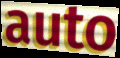
auto